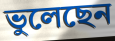
ভুলেছেন